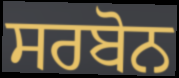
ਸਰਬੋਨ